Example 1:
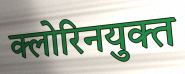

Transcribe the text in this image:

क्लोरिनयुक्त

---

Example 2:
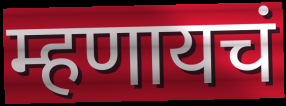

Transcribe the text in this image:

म्हणायचं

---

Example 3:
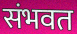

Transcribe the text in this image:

संभवत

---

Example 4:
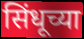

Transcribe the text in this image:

सिंधूच्या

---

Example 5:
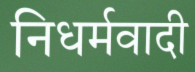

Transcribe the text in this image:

निधर्मवादी